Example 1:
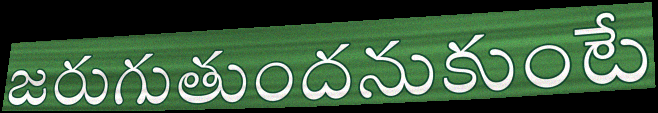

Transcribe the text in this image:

జరుగుతుందనుకుంటే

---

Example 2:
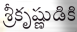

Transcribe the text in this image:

శ్రీకృష్ణుడికి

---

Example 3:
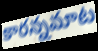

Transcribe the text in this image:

కారన్నమాట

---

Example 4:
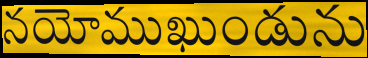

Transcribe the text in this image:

నయోముఖుండును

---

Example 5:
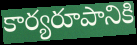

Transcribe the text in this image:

కార్యరూపానికి